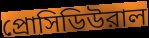
প্রোসিডিউরাল